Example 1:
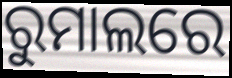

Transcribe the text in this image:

ରୁମାଲରେ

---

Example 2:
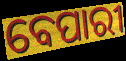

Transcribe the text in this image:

ବେପାରୀ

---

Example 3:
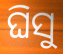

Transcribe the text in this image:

ଘିସୁ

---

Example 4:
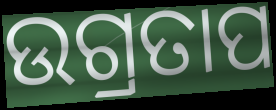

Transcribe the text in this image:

ଉଗ୍ରତାପ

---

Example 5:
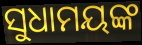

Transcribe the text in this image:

ସୁଧାମୟଙ୍କ